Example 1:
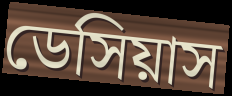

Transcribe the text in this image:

ডেসিয়াস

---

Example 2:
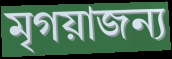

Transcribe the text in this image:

মৃগয়াজন্য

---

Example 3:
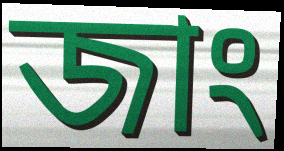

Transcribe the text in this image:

জাং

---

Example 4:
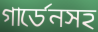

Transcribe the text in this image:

গার্ডেনসহ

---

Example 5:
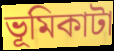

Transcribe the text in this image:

ভূমিকাটা